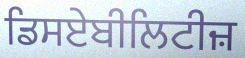
ਡਿਸਏਬੀਲਿਟੀਜ਼